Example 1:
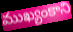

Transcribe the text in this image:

ముఖ్యంకాని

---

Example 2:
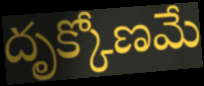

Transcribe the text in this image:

దృక్కోణమే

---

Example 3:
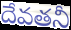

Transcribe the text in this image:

దేవతనీ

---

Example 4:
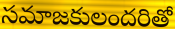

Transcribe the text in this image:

సమాజకులందరితో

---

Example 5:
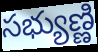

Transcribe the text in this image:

సభ్యుణ్ణి